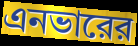
এনভারের